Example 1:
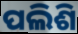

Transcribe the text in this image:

ପଲିଶି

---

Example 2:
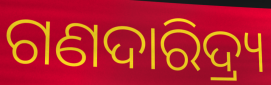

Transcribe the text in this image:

ଗଣଦାରିଦ୍ର୍ୟ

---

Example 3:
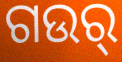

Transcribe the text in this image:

ଗଉର୍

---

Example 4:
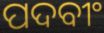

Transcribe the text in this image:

ପଦବୀଂ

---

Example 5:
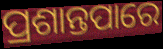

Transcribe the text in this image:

ପ୍ରଶାନ୍ତପାରେ